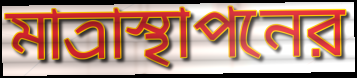
মাত্রাস্থাপনের